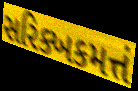
સરિક્ખકમત્તં